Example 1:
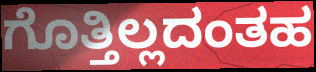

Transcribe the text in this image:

ಗೊತ್ತಿಲ್ಲದಂತಹ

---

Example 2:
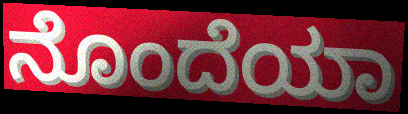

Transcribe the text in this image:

ನೊಂದೆಯಾ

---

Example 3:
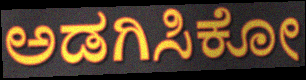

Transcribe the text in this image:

ಅಡಗಿಸಿಕೋ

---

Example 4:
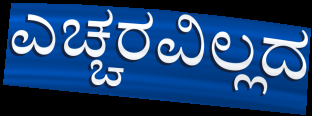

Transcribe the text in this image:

ಎಚ್ಚರವಿಲ್ಲದ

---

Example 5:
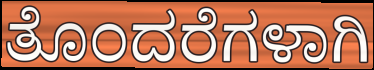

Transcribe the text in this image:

ತೊಂದರೆಗಳಾಗಿ